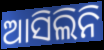
ଆସିଲିନି